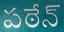
పఠేన్